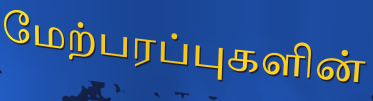
மேற்பரப்புகளின்